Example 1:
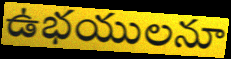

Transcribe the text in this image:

ఉభయులనూ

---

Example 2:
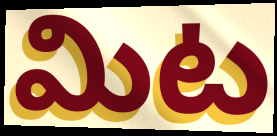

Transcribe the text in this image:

మిట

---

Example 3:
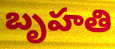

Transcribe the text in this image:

బృహతి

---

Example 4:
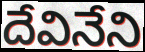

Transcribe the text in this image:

దేవినేని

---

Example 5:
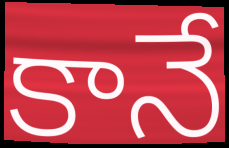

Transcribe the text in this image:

కానే